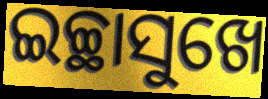
ଇଚ୍ଛାସୁଖେ